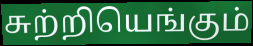
சுற்றியெங்கும்